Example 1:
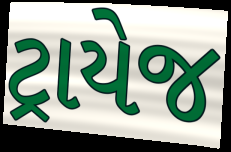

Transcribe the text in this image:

ટ્રાયેજ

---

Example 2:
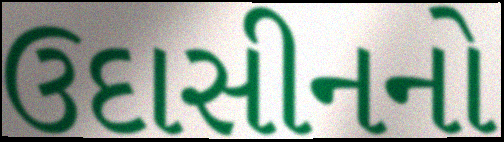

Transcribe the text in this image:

ઉદાસીનનો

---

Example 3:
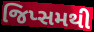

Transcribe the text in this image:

જિપ્સમથી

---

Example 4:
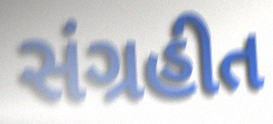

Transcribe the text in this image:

સંગ્રહીત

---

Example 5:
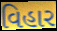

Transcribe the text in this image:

વિહાર